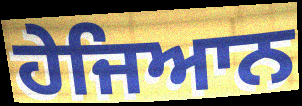
ਹੇਜਿਆਨ